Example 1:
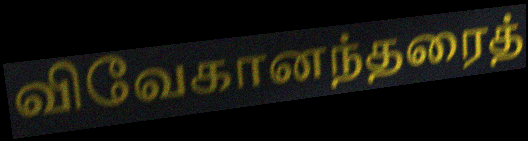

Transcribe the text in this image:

விவேகானந்தரைத்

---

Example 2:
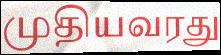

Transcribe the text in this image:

முதியவரது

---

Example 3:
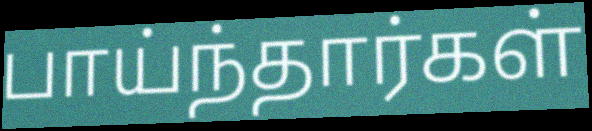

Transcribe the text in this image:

பாய்ந்தார்கள்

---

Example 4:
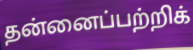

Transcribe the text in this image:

தன்னைப்பற்றிக்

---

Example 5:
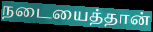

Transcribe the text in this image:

நடையைத்தான்